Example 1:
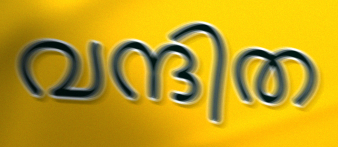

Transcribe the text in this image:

വന്ദിത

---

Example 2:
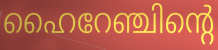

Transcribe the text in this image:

ഹൈറേഞ്ചിന്റെ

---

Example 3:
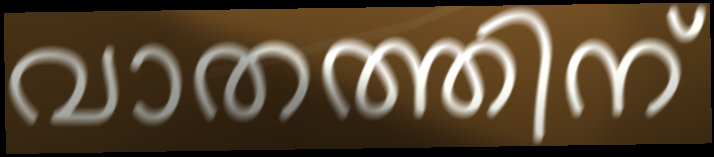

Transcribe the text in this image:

വാതത്തിന്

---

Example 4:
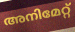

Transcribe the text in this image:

അനിമേറ്റ്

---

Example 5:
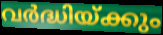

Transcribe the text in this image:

വർദ്ധിയ്ക്കും